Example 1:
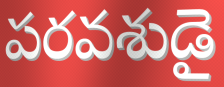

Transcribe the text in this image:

పరవశుడై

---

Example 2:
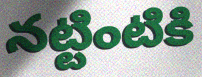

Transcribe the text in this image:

నట్టింటికి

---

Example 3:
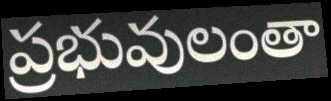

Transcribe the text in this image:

ప్రభువులంతా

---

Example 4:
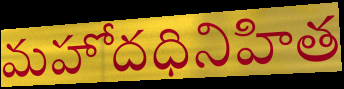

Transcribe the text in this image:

మహోదధినిహిత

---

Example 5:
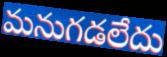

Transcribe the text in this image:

మనుగడలేదు